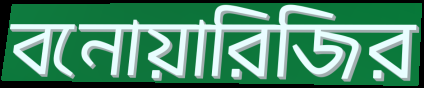
বনোয়ারিজির